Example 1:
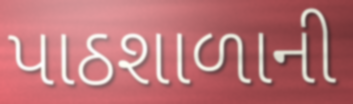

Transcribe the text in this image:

પાઠશાળાની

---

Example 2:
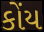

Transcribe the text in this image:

કોંય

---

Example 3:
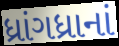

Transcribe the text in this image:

ધ્રાંગધ્રાનાં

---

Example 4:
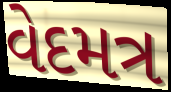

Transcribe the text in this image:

વેદમત્ર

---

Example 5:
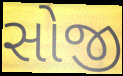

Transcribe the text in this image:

સોજી